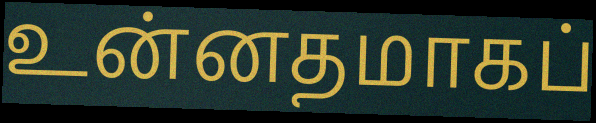
உன்னதமாகப்